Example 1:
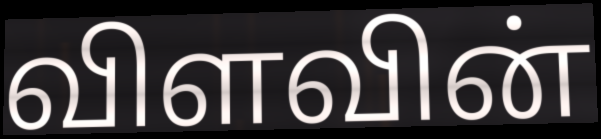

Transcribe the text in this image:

விளவின்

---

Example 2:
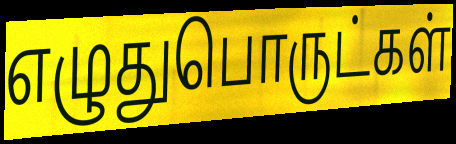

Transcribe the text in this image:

எழுதுபொருட்கள்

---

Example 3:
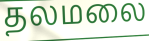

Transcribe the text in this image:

தலமலை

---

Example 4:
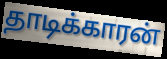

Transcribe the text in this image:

தாடிக்காரன்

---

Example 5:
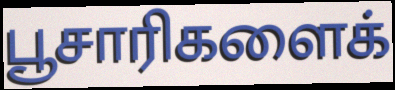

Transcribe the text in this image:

பூசாரிகளைக்